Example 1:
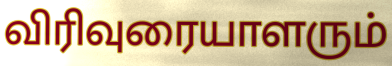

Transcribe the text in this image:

விரிவுரையாளரும்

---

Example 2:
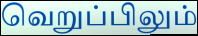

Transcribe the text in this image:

வெறுப்பிலும்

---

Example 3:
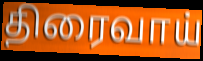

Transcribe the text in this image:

திரைவாய்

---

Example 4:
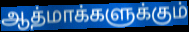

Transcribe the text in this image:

ஆத்மாக்களுக்கும்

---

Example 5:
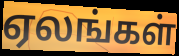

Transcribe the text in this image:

ஏலங்கள்